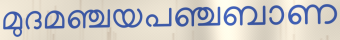
മുദമഞ്ചയപഞ്ചബാണ